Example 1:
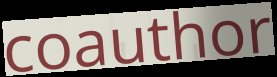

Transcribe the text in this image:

coauthor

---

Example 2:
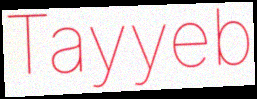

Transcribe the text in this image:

Tayyeb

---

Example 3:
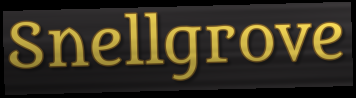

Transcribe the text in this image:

Snellgrove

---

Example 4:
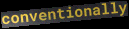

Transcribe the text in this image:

conventionally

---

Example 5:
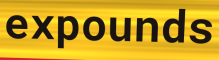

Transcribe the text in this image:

expounds